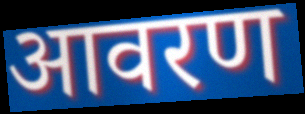
आवरण